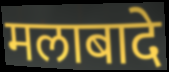
मलाबादे